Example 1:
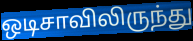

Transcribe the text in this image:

ஒடிசாவிலிருந்து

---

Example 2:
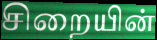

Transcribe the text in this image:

சிறையின்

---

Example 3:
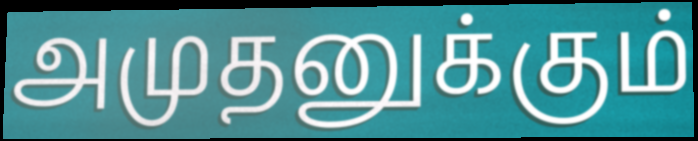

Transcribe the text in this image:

அமுதனுக்கும்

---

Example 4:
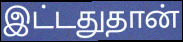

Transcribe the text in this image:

இட்டதுதான்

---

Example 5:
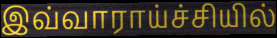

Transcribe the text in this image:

இவ்வாராய்ச்சியில்